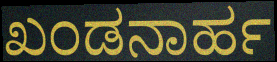
ಖಂಡನಾರ್ಹ